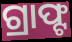
ଗ୍ରାଫ୍ଟ